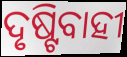
ଦୃଷ୍ଟିବାହୀ